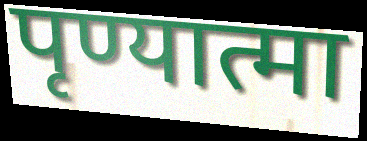
पृण्यात्मा